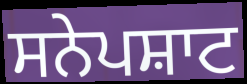
ਸਨੇਪਸ਼ਾਟ